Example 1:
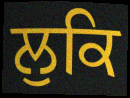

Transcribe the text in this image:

ਲੁਕਿ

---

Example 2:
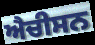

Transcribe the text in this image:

ਐਚੀਸਨ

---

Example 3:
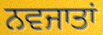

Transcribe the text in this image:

ਨਵਜਾਤਾਂ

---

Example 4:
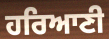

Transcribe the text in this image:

ਹਰਿਆਣੀ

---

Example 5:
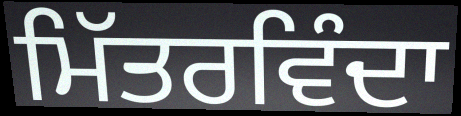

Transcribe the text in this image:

ਮਿੱਤਰਵਿੰਦਾ